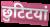
छुटिटयां